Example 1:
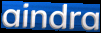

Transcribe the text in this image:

aindra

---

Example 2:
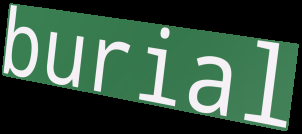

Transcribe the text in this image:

burial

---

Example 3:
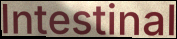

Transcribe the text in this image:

Intestinal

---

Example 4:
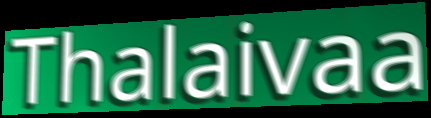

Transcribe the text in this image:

Thalaivaa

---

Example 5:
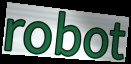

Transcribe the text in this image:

robot